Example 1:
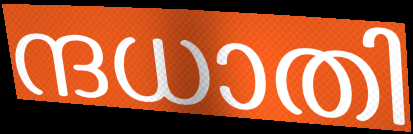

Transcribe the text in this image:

ന്ദധാതി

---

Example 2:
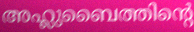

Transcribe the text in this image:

അഹ്ലുബൈത്തിന്റെ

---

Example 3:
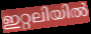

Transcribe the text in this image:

ഇറ്റലിയിൽ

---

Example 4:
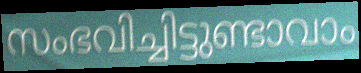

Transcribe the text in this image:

സംഭവിച്ചിട്ടുണ്ടാവാം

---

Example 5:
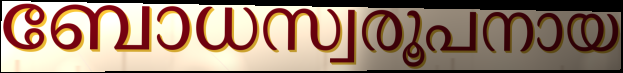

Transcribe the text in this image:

ബോധസ്വരൂപനായ